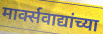
मार्क्सवाद्यांच्या